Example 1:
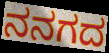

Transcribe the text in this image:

ನನಗದ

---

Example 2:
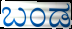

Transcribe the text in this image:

ಬಂಡ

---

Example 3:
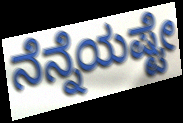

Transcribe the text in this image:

ನೆನ್ನೆಯಷ್ಟೇ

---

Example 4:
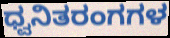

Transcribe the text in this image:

ಧ್ವನಿತರಂಗಗಳ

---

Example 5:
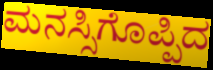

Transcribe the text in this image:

ಮನಸ್ಸಿಗೊಪ್ಪಿದ